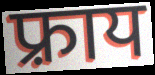
फ़्राय